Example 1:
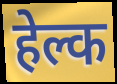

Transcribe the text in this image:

हेल्क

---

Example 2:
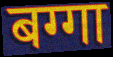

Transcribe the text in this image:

बग्गा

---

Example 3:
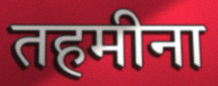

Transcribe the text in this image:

तहमीना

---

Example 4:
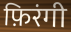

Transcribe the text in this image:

फ़िरंगी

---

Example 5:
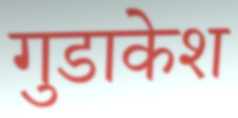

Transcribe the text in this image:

गुडाकेश